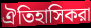
ঐতিহাসিকরা